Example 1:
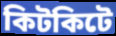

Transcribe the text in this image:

কিটকিটে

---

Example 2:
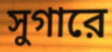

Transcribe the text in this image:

সুগারে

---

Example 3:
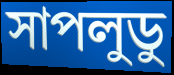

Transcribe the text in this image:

সাপলুডু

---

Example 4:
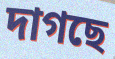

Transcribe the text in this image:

দাগছে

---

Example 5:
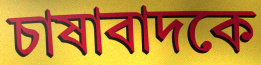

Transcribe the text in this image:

চাষাবাদকে